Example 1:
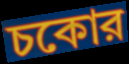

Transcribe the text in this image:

চকোর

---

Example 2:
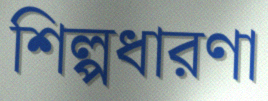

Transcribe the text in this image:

শিল্পধারণা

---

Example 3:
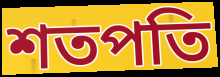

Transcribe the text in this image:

শতপতি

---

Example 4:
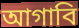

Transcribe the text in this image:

আগাবি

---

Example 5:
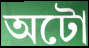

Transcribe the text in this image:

অটো